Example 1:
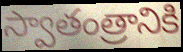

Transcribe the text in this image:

స్వాతంత్రానికి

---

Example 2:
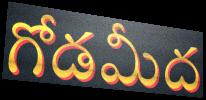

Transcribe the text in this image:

గోడమీద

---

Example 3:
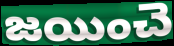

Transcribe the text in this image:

జయించె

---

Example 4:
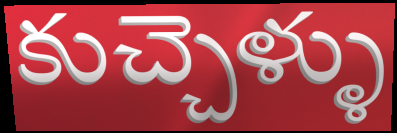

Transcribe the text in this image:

కుచ్చెళ్ళు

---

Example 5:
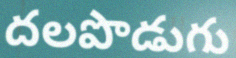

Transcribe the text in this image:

దలపొడుగు